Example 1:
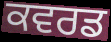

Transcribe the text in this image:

ਕਵਰਡ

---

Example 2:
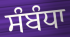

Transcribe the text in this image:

ਸੰਬੰਧਾ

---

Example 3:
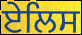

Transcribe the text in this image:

ਏਲਿਸ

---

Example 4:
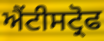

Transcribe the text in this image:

ਐਂਟੀਸਟ੍ਰੋਫ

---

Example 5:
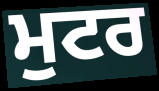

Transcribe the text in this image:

ਮੁਟਰ